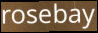
rosebay